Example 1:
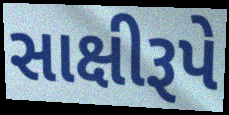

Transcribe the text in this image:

સાક્ષીરૂપે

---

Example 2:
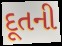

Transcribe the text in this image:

દૂતની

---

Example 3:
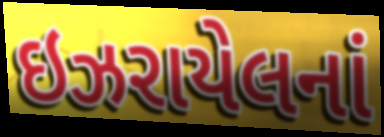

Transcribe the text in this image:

ઇઝરાયેલનાં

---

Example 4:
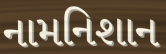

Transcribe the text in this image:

નામનિશાન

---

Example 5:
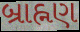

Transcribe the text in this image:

બ્રાહ્નણ